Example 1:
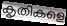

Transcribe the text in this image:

കൃതികളെ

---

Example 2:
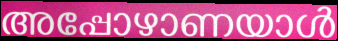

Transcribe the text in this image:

അപ്പോഴാണയാൾ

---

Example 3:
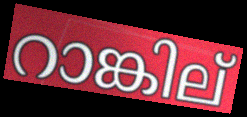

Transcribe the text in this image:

റാങ്കില്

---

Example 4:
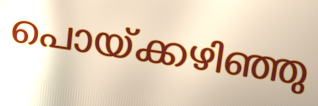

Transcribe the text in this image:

പൊയ്‌ക്കഴിഞ്ഞു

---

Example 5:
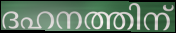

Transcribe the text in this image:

ദഹനത്തിന്